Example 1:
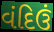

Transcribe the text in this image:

વંદિઉં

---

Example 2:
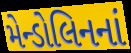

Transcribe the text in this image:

મેન્ડોલિનનાં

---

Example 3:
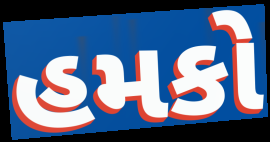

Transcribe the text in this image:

હમકો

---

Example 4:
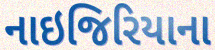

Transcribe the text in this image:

નાઇજિરિયાના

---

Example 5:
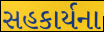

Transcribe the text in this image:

સહકાર્યના